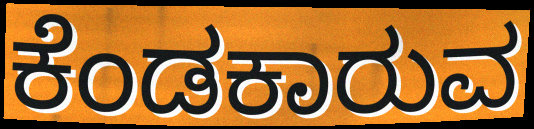
ಕೆಂಡಕಾರುವ